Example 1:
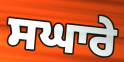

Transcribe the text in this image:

ਸਘਾਰੇ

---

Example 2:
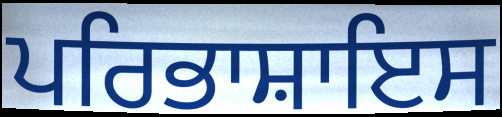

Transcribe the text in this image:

ਪਰਿਭਾਸ਼ਾਇਸ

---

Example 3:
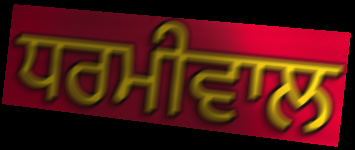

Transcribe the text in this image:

ਧਰਮੀਵਾਲ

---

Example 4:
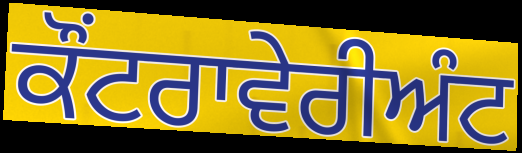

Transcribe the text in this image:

ਕੌਂਟਰਾਵੇਰੀਅੰਟ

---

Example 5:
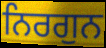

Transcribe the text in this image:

ਨਿਰਗੁਨ